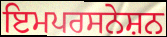
ਇਮਪਰਸਨੇਸ਼ਨ